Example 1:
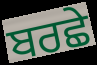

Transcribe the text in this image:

ਬਰਛੇ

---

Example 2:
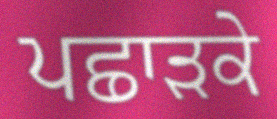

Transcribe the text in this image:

ਪਛਾੜਕੇ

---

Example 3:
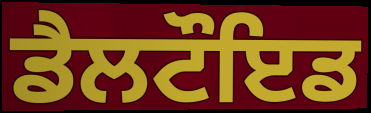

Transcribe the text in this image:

ਡੈਲਟੌਇਡ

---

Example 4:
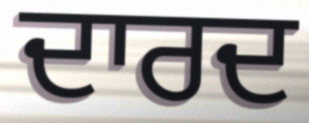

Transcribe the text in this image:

ਦਾਰਦ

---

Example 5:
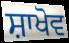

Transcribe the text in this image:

ਸ਼ਾਖੋਵ